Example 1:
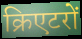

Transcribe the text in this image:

क्रिएटरों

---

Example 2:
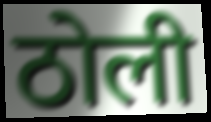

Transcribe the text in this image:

ठोली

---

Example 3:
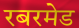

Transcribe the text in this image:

रबरमेड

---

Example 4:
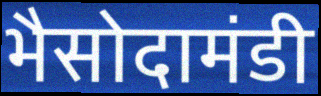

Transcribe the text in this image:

भैसोदामंडी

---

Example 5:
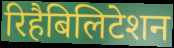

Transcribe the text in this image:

रिहैबिलिटेशन